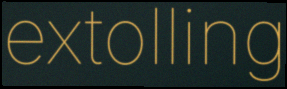
extolling